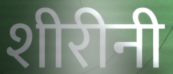
शीरीनी